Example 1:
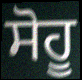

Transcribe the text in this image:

ਸੋਹੂ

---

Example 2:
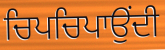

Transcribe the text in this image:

ਚਿਪਚਿਪਾਉਂਦੀ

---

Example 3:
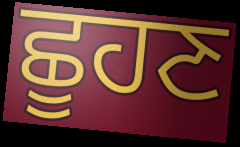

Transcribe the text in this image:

ਛੂਹਣ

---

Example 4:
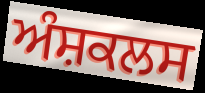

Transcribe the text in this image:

ਅੰਸ਼ਕਲਸ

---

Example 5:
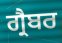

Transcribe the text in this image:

ਗ੍ਰੈਬਰ